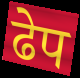
ढेप